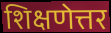
शिक्षणेत्तर